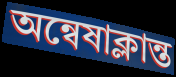
অন্বেষাক্লান্ত